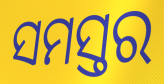
ସମସ୍ତର